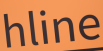
hline